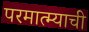
परमात्म्याची